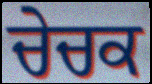
ਚੇਚਕ